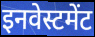
इनवेस्टमेंट